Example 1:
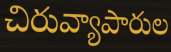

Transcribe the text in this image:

చిరువ్యాపారుల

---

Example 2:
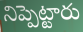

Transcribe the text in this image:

నిప్పెట్టారు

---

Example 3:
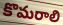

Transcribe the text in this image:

కొమరాలి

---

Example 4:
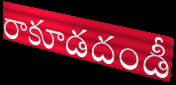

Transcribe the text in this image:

రాకూడదండీ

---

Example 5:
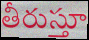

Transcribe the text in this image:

తీరుస్తూ